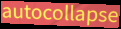
autocollapse